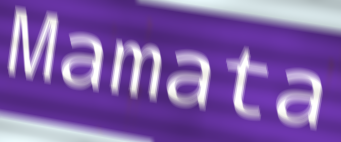
Mamata